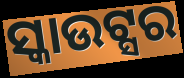
ସ୍କାଉଟ୍ସର